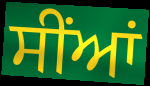
ਸੀਂਆਂ